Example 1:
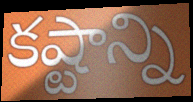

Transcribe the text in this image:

కష్టాన్ని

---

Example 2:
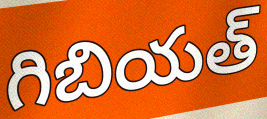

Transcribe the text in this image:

గిబియత్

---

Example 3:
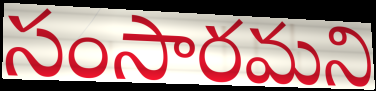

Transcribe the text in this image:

సంసారమని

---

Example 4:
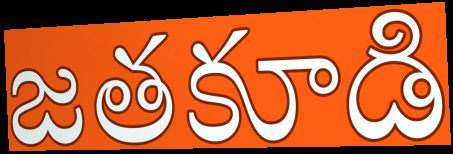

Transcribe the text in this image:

జతకూడి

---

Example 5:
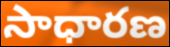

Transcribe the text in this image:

సాధారణ